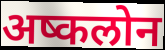
अष्कलोन